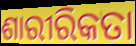
ଶାରୀରିକତା